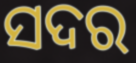
ସଦର